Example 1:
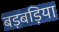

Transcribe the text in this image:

बड़बड़िया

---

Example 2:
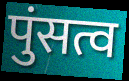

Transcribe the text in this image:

पुंसत्व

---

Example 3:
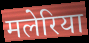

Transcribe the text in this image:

मलेरिया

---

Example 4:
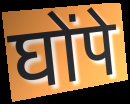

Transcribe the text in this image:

घोंपे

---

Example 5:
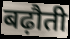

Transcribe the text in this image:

बढ़ौती